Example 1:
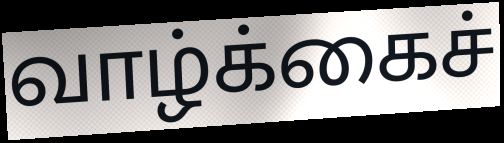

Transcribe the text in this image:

வாழ்க்கைச்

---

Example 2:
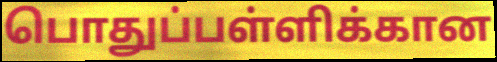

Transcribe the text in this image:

பொதுப்பள்ளிக்கான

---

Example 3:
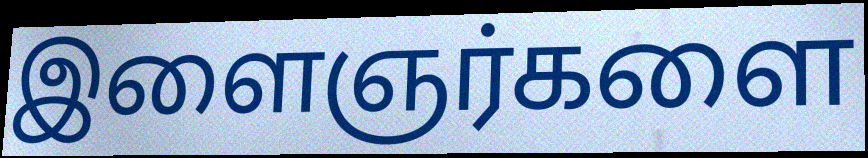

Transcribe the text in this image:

இளைஞர்களை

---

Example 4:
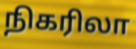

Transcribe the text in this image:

நிகரிலா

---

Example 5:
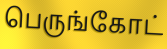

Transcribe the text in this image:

பெருங்கோட்